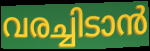
വരച്ചിടാൻ